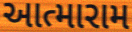
આત્મારામ